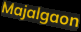
Majalgaon